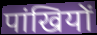
पांखियों